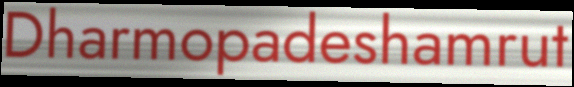
Dharmopadeshamrut